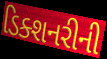
ડિક્શનરીની